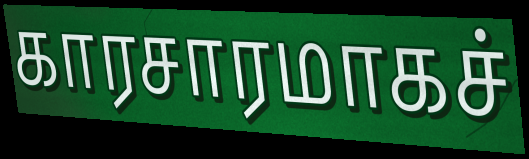
காரசாரமாகச்